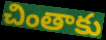
చింతాకు